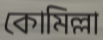
কোমিল্লা